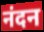
नंदन